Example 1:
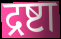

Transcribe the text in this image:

द्रष्टा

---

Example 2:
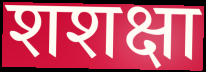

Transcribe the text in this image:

शशक्षा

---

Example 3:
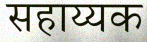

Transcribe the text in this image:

सहाय्यक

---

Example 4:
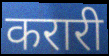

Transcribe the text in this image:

करारी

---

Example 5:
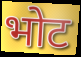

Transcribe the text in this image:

भोट